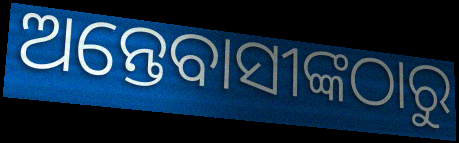
ଅନ୍ତେବାସୀଙ୍କଠାରୁ